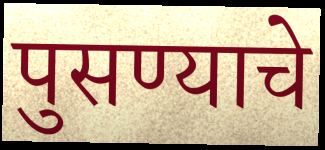
पुसण्याचे